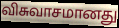
விசுவாசமானது